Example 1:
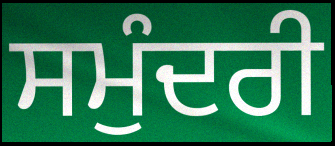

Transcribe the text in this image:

ਸਮੁੰਦਰੀ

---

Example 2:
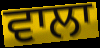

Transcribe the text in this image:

ਵਾਲਾ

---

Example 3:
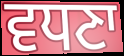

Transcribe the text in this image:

ਵਧਣਾ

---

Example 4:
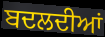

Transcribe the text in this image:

ਬਦਲਦੀਆਂ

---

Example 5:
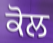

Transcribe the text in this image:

ਕੋਲ